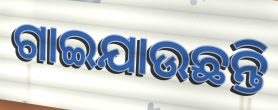
ଗାଇଯାଉଛନ୍ତି